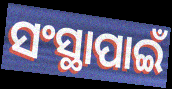
ସଂସ୍ଥାପାଇଁ